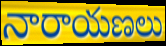
నారాయణలు